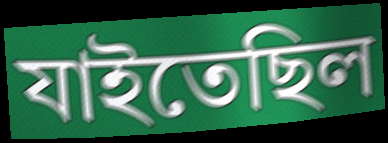
যাইতেছিল